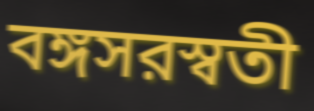
বঙ্গসরস্বতী